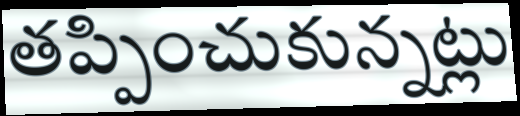
తప్పించుకున్నట్లు